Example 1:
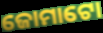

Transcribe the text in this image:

ଜୋମାଟୋ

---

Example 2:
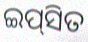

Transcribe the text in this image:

ଇପ୍‌ସିତ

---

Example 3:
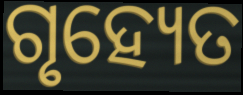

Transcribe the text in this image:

ଗୃହ୍ଯେତ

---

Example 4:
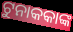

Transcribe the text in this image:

ଟୁନାକକାଙ୍କ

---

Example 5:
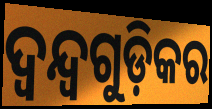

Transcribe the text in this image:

ଦ୍ୱନ୍ଦ୍ୱଗୁଡ଼ିକର